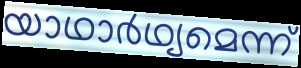
യാഥാർഥ്യമെന്ന്